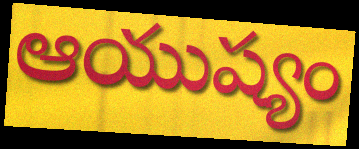
ఆయుష్యం